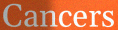
Cancers